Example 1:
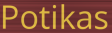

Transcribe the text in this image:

Potikas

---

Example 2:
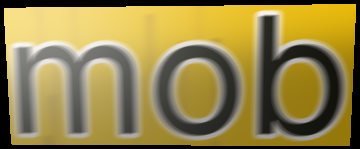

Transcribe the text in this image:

mob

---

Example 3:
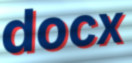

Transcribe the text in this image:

docx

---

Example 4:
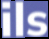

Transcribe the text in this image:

ils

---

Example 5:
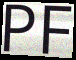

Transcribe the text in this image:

PF